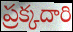
ప్రక్కదారి